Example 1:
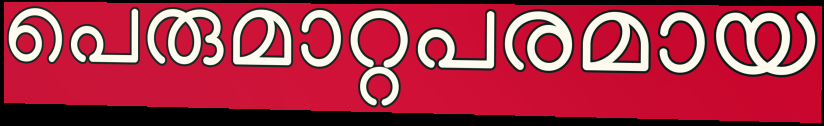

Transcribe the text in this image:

പെരുമാറ്റപരമായ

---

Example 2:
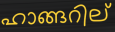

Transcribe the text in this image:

ഹാങ്ങറില്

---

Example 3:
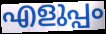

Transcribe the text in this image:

എളുപ്പം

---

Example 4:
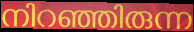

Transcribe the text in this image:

നിറഞ്ഞിരുന്ന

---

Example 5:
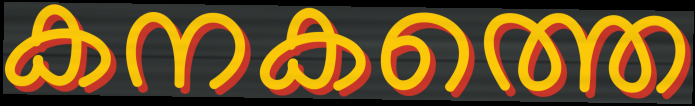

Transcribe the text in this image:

കനകത്തെ